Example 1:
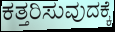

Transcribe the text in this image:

ಕತ್ತರಿಸುವುದಕ್ಕೆ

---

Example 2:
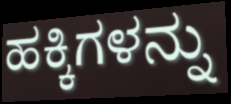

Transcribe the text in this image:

ಹಕ್ಕಿಗಳನ್ನು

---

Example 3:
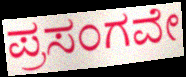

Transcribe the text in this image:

ಪ್ರಸಂಗವೇ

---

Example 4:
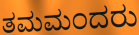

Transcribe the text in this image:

ತಮಮಂದರು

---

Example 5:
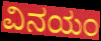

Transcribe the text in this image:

ವಿನಯಂ